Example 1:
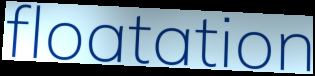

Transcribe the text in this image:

floatation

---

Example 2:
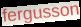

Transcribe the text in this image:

fergusson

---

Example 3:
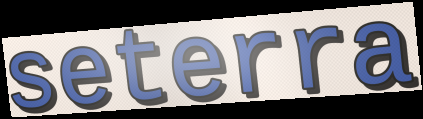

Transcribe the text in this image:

seterra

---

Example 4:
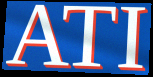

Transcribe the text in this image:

ATI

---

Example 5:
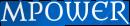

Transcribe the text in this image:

MPOWER